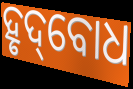
ହୃଦ୍‌ବୋଧ